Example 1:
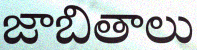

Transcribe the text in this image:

జాబితాలు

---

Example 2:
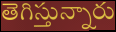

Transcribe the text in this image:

తెగిస్తున్నారు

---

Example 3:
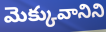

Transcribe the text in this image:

మెక్కువానిని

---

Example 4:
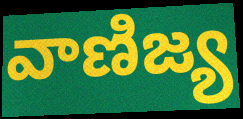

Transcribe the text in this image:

వాణిజ్య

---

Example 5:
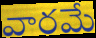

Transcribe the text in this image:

వారమే